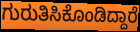
ಗುರುತಿಸಿಕೊಂಡಿದ್ದಾರೆ